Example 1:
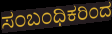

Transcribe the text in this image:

ಸಂಬಂಧಿಕರಿಂದ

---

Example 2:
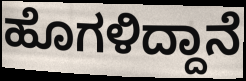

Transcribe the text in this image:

ಹೊಗಳಿದ್ದಾನೆ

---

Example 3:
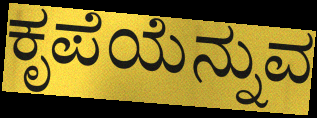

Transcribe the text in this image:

ಕೃಪೆಯೆನ್ನುವ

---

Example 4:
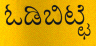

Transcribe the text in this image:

ಓಡಿಬಿಟ್ಟೆ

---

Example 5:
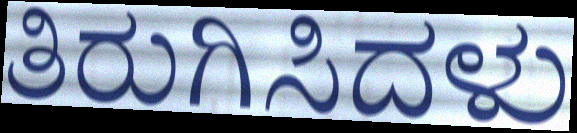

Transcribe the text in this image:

ತಿರುಗಿಸಿದಳು